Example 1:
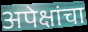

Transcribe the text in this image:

अपेक्षांचा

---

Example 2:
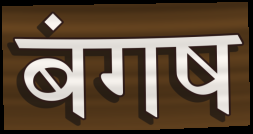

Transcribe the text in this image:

बंगष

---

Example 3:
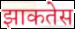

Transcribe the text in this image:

झाकतेस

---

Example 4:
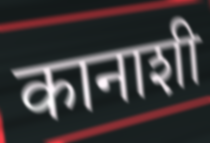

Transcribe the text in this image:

कानाशी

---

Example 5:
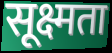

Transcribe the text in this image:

सूक्ष्मता